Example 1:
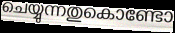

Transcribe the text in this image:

ചെയ്യുന്നതുകൊണ്ടോ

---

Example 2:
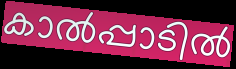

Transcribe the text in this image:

കാൽപ്പാടിൽ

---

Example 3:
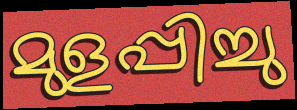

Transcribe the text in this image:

മുളപ്പിച്ചു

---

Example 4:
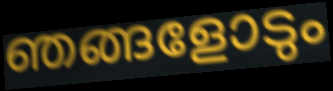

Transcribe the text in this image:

ഞങ്ങളോടും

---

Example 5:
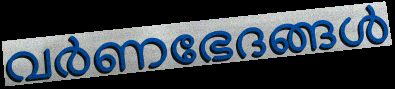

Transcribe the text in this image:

വർണഭേദങ്ങൾ